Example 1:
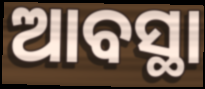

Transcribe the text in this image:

ଆବସ୍ଥା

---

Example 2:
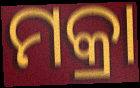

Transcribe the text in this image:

ମକ୍ରା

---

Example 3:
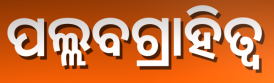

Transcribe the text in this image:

ପଲ୍ଲବଗ୍ରାହିତ୍ୱ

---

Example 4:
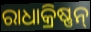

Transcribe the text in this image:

ରାଧାକ୍ରିଷ୍ଣନ୍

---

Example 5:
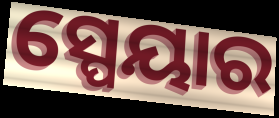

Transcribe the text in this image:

ସ୍ପେୟାର